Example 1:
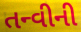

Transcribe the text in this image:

તન્વીની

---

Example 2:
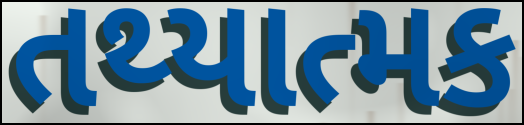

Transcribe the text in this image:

તથ્યાત્મક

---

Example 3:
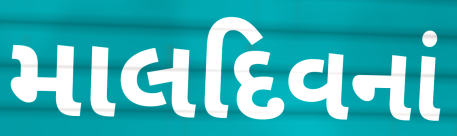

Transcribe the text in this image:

માલદિવનાં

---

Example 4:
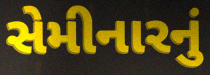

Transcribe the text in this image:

સેમીનારનું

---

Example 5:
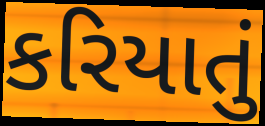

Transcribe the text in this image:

કરિયાતું